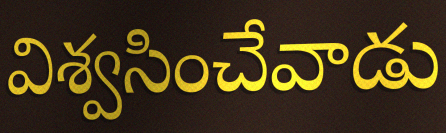
విశ్వసించేవాడు